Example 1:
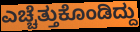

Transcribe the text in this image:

ಎಚ್ಚೆತ್ತುಕೊಂಡಿದ್ದು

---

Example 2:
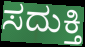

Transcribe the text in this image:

ಸದುಕ್ತಿ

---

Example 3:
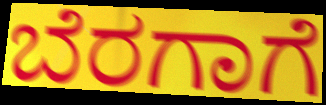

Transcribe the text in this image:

ಬೆರಗಾಗೆ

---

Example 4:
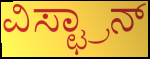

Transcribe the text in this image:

ವಿಸ್ಟ್ರಾನ್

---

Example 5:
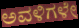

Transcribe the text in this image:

ಅವಳಿಗಳೇ